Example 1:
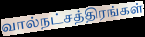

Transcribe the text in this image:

வால்நட்சத்திரங்கள்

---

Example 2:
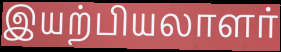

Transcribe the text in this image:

இயற்பியலாளர்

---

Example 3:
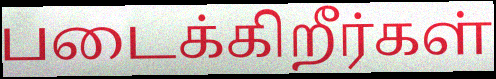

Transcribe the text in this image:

படைக்கிறீர்கள்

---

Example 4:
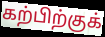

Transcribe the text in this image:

கற்பிற்குக்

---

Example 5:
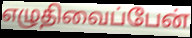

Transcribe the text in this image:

எழுதிவைப்பேன்